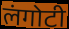
लंगोटी